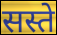
सस्ते